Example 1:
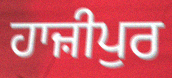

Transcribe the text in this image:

ਹਾਜ਼ੀਪੁਰ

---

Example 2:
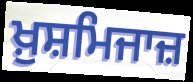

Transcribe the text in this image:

ਖ਼ੁਸ਼ਮਿਜਾਜ਼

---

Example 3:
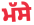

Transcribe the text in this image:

ਮੱਸੇ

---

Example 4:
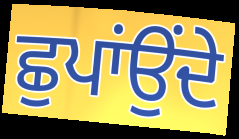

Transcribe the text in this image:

ਛੁਪਾਂਉਂਦੇ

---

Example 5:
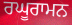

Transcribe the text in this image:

ਰਘੂਰਾਮਨ